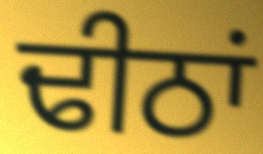
ਢੀਠਾਂ